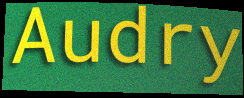
Audry